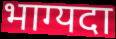
भाग्यदा